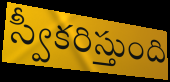
స్వీకరిస్తుంది